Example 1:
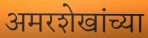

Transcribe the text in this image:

अमरशेखांच्या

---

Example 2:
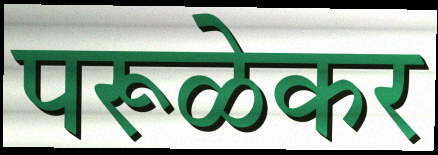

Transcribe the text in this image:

परूळेकर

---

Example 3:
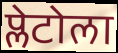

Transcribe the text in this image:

प्लेटोला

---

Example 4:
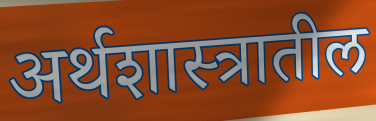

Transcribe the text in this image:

अर्थशास्त्रातील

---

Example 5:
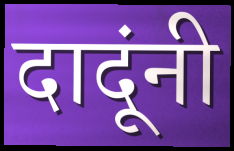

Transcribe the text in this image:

दादूंनी